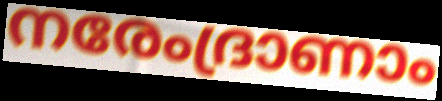
നരേംദ്രാണാം